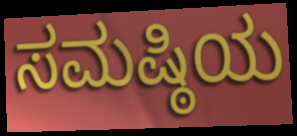
ಸಮಷ್ಠಿಯ